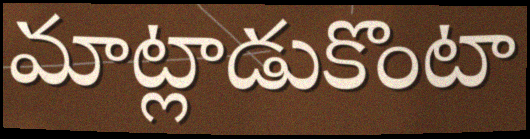
మాట్లాడుకొంటా